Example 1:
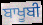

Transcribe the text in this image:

ਬਾਖੂਬੀ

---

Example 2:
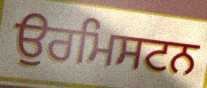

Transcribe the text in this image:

ਉਰਮਿਸਟਨ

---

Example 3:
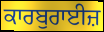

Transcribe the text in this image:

ਕਾਰਬੁਰਾਈਜ਼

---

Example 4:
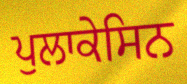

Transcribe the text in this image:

ਪੁਲਾਕੇਸਿਨ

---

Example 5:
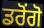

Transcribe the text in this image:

ਡਰੋਂਗੋ